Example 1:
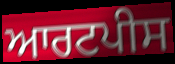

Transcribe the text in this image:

ਆਰਟਪੀਸ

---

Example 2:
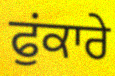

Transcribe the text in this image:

ਫੁਂਕਾਰੇ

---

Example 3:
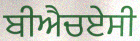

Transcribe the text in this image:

ਬੀਐਚਏਸੀ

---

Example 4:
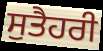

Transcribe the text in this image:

ਸੁਤੈਹਰੀ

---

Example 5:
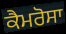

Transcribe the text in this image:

ਕੈਮਰੋਸਾ